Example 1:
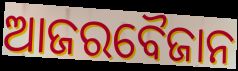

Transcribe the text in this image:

ଆଜରବୈଜାନ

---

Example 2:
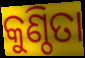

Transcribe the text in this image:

କୁଣ୍ଠିତା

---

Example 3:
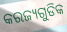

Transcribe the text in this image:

କରଜ୍ୟଗୁଡିକ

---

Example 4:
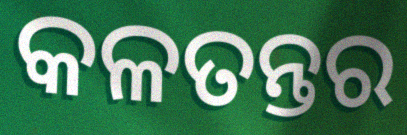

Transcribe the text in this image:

କଳତନ୍ତର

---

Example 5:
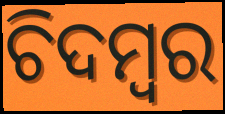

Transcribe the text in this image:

ଚିଦମ୍ବର